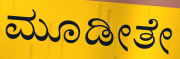
ಮೂಡೀತೇ